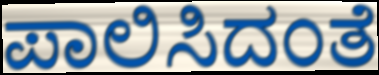
ಪಾಲಿಸಿದಂತೆ